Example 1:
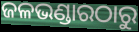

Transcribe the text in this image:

ଜଳଭଣ୍ଡାରଠାରୁ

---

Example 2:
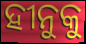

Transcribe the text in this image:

ହୀନୁକୁ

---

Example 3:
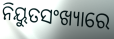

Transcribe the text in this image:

ନିୟୁତସଂଖ୍ୟାରେ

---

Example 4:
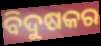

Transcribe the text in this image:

ବିଦୁଷକର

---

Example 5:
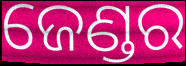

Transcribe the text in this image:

ଜେଣ୍ଡର